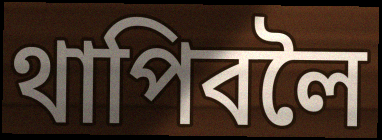
থাপিবলৈ